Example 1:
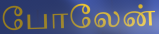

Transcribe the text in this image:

போலேன்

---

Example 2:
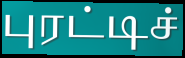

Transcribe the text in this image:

புரட்டிச்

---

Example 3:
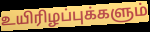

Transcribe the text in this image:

உயிரிழப்புக்களும்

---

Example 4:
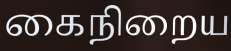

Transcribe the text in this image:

கைநிறைய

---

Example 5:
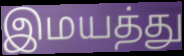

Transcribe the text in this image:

இமயத்து